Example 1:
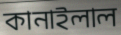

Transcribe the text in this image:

কানাইলাল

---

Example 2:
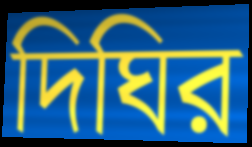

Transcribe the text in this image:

দিঘির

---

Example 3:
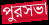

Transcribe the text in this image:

পুরসভা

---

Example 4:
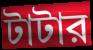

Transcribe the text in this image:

টাটার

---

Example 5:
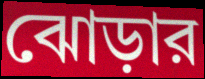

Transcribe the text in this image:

ঝোড়ার